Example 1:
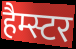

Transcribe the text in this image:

हैम्स्टर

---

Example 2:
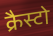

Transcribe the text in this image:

क्रैस्टो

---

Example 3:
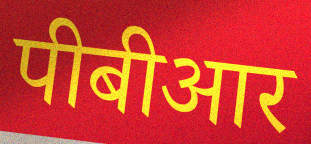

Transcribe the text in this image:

पीबीआर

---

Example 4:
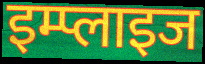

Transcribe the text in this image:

इम्प्लाइज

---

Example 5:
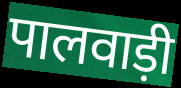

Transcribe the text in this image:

पालवाड़ी